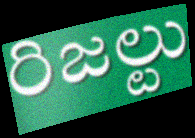
రిజల్టు